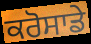
ਕਰੋਸਾਡੇ